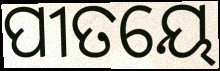
ପୀତୟେ